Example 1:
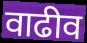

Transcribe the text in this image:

वाढीव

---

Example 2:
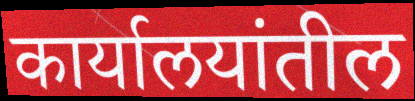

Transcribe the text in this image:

कार्यालयांतील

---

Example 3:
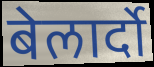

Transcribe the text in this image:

बेलार्दो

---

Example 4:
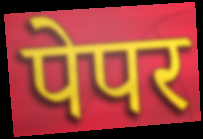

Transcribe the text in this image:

पेपर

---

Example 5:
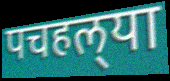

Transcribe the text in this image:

पचहल्या